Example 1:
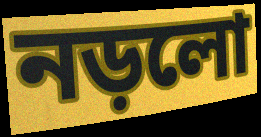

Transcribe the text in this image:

নড়লো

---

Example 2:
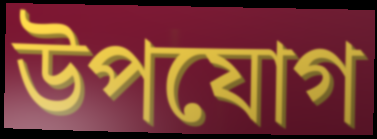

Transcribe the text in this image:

উপযোগ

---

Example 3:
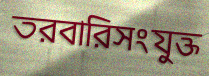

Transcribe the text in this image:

তরবারিসংযুক্ত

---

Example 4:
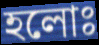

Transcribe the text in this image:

হলোঃ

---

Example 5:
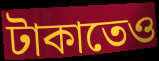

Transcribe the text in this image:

টাকাতেও